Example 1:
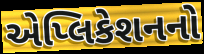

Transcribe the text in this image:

એપ્લિકેશનનો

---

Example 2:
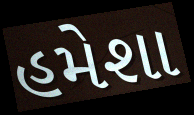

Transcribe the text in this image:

હમેશા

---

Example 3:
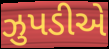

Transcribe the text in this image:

ઝુપડીએ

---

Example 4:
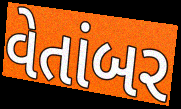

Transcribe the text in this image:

વેતાંબર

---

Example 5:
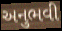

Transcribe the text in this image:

અનુભવી